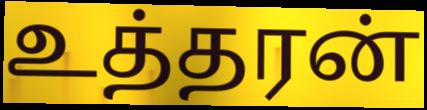
உத்தரன்